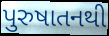
પુરુષાતનથી